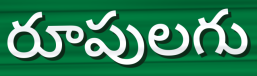
రూపులగు